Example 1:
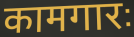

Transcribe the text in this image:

कामगारः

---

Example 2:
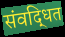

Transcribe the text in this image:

संवद्धित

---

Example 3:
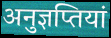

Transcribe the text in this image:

अनुज्ञप्तियां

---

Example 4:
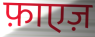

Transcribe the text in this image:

फ़ाएज़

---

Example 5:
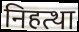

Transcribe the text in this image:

निहत्था